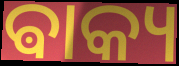
ଵାକ୍ୟ